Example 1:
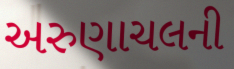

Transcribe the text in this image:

અરુણાચલની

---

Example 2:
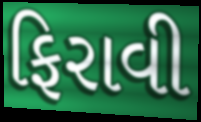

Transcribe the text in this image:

ફિરાવી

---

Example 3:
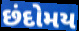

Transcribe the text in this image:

છંદોમય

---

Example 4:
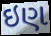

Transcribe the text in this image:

ઇણ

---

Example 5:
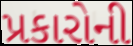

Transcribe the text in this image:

પ્રકારોની